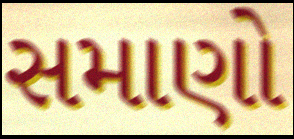
સમાણો